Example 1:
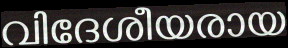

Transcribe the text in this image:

വിദേശീയരായ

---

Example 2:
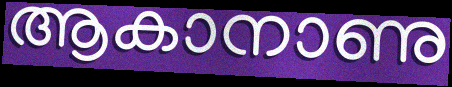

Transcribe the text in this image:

ആകാനാണു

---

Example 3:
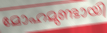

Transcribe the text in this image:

മോഹമുണ്ടായി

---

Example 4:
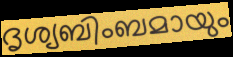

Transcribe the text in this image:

ദൃശ്യബിംബമായും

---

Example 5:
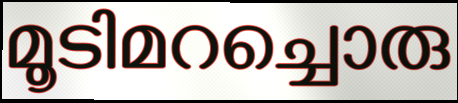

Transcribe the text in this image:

മൂടിമറച്ചൊരു